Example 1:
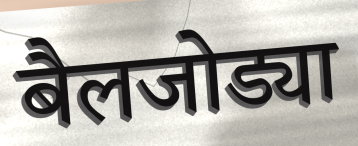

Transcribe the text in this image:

बैलजोड्या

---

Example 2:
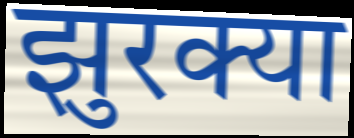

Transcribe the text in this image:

झुरक्या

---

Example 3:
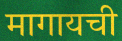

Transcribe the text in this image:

मागायची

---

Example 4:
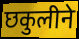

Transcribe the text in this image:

छकुलीने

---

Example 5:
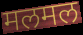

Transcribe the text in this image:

मलमल